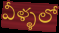
వీళ్ళలో